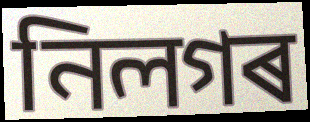
নিলগৰ